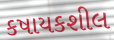
કષાયકશીલ